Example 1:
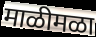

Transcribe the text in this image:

माळीमळा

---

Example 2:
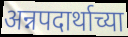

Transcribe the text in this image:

अन्नपदार्थाच्या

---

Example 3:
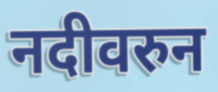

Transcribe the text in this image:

नदीवरुन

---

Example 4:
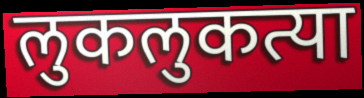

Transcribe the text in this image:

लुकलुकत्या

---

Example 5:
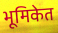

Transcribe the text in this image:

भूमिकेत